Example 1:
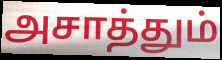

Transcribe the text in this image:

அசாத்தும்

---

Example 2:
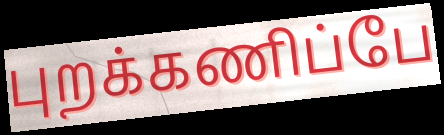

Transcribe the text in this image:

புறக்கணிப்பே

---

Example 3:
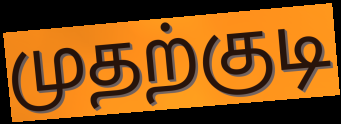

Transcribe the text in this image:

முதற்குடி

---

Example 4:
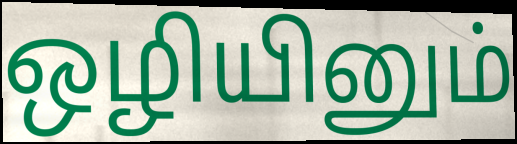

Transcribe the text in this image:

ஒழியினும்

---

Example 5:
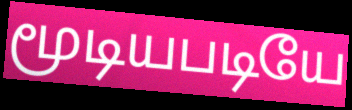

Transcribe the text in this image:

மூடியபடியே